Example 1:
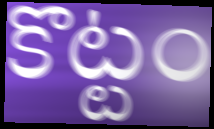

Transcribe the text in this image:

కొట్టం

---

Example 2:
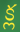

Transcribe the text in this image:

క్ల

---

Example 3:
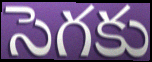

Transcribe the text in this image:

సెగకు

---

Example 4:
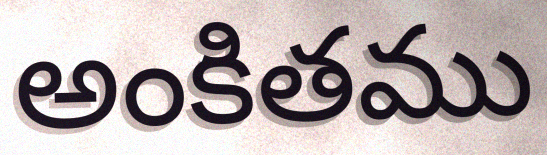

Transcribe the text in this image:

అంకితము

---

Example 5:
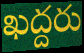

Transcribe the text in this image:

ఖద్దరు